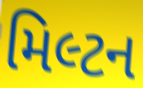
મિલ્ટન